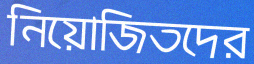
নিয়োজিতদের